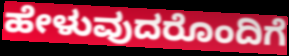
ಹೇಳುವುದರೊಂದಿಗೆ